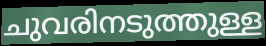
ചുവരിനടുത്തുള്ള